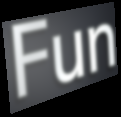
Fun